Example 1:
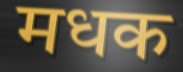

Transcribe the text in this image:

मधक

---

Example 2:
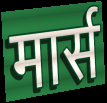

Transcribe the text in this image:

मार्स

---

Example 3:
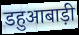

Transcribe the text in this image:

डहुआबाड़ी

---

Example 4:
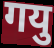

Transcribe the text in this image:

गयु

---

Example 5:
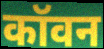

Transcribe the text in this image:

कॉवन